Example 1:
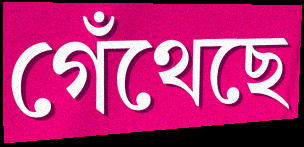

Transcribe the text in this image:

গেঁথেছে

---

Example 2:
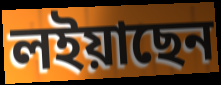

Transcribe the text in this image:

লইয়াছেন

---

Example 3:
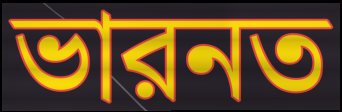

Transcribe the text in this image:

ভারনত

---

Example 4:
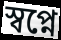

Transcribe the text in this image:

স্বপ্নে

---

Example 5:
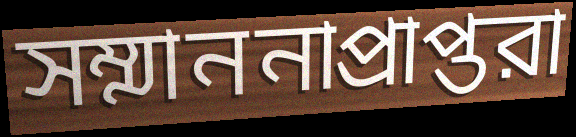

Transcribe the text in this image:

সম্মাননাপ্রাপ্তরা